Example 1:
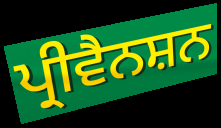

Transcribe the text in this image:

ਪ੍ਰੀਵੈਨਸ਼ਨ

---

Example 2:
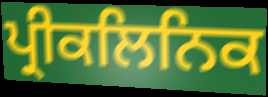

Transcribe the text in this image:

ਪ੍ਰੀਕਲਿਨਿਕ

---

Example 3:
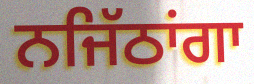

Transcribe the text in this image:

ਨਜਿੱਠਾਂਗਾ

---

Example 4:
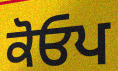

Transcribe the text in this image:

ਕੋਓਪ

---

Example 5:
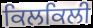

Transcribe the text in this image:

ਕਿਲਕਿਲੀ